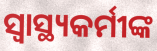
ସ୍ବାସ୍ଥ୍ୟକର୍ମୀଙ୍କ